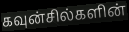
கவுன்சில்களின்